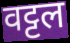
वट्टल